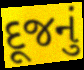
દૂજનું